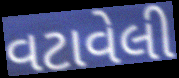
વટાવેલી